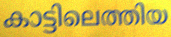
കാട്ടിലെത്തിയ